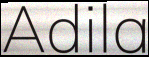
Adila